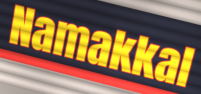
Namakkal